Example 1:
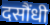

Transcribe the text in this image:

दसौंधी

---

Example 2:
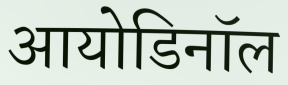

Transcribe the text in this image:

आयोडिनॉल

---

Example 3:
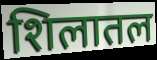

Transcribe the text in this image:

शिलातल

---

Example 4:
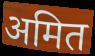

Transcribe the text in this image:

अमित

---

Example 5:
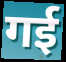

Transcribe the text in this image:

गई